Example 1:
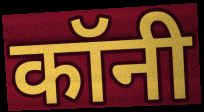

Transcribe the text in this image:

कॉनी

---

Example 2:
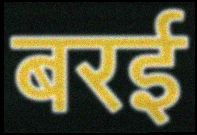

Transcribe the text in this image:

बरई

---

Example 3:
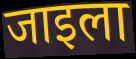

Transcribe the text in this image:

जाइला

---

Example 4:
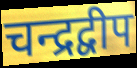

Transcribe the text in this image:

चन्द्रद्वीप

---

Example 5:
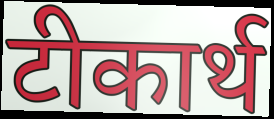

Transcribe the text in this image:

टीकार्थ